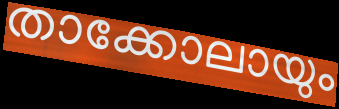
താക്കോലായും